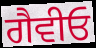
ਗੈਵੀਓ